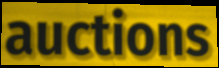
auctions